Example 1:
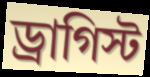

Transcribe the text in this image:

ড্রাগিস্ট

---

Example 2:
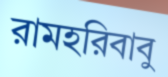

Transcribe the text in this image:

রামহরিবাবু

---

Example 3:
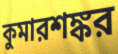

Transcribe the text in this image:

কুমারশঙ্কর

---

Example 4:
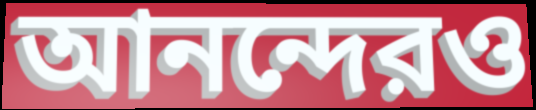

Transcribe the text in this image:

আনন্দেরও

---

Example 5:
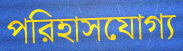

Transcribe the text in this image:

পরিহাসযোগ্য